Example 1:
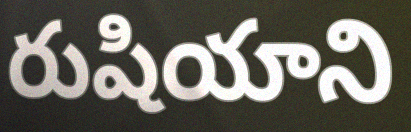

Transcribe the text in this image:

రుషియాని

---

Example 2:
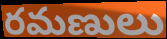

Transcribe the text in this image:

రమణులు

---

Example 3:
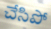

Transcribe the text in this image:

చేసిపో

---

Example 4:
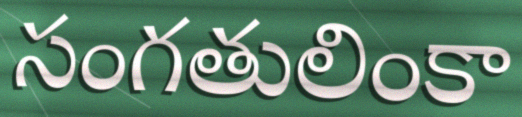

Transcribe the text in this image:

సంగతులింకా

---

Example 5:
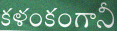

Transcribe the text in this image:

కళంకంగానీ